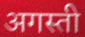
अगस्ती